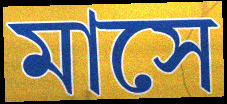
মাসে